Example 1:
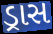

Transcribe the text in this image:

ડ્રાસ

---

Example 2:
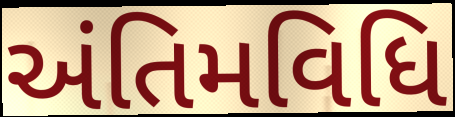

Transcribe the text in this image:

અંતિમવિધિ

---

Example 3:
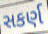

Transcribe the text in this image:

સકર્ણ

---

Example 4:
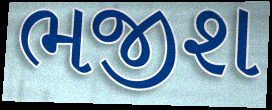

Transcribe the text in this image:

ભજીશ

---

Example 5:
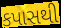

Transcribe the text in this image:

કપાસથી